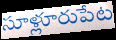
సూళ్లూరుపేట